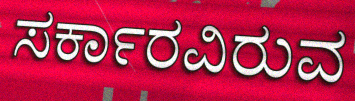
ಸರ್ಕಾರವಿರುವ